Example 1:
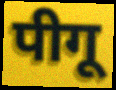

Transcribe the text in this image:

पीगू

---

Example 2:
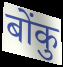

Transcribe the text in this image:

बोंकु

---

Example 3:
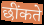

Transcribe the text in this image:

छींकते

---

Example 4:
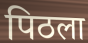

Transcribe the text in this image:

पिठला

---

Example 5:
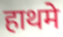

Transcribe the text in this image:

हाथमे